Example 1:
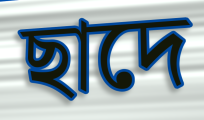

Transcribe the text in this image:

ছাদে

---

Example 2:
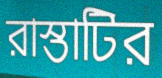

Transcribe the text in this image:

রাস্তাটির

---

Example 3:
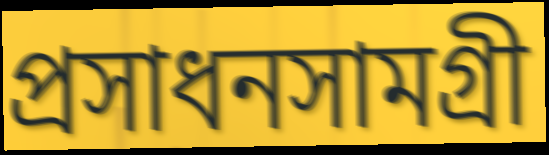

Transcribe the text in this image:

প্রসাধনসামগ্রী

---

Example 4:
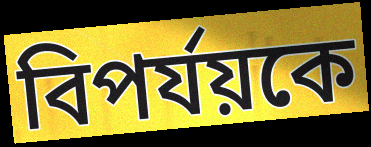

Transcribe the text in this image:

বিপর্যয়কে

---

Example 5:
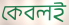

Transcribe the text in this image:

কেবলই